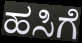
ಹಸಿಗೆ